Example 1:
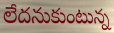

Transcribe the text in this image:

లేదనుకుంటున్న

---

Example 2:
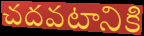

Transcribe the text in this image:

చదవటానికి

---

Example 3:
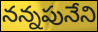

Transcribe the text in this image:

నన్నపునేని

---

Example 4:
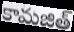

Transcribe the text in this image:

కామజిత్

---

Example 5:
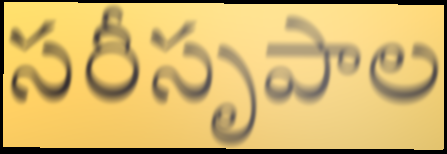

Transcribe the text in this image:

సరీసృపాల